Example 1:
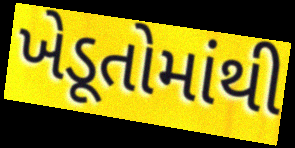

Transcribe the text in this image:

ખેડૂતોમાંથી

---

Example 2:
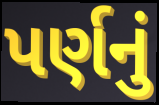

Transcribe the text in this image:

પર્ણનું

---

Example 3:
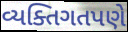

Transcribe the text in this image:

વ્યક્તિગતપણે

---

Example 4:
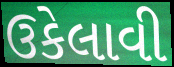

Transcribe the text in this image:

ઉકેલાવી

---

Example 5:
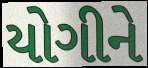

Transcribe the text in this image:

યોગીને